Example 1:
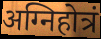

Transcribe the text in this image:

अग्निहोत्रं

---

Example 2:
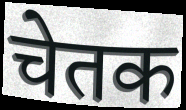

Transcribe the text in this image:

चेतक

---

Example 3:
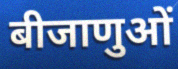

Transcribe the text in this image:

बीजाणुओं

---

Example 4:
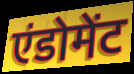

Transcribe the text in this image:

एंडोमेंट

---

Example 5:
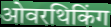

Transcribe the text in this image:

ओवरथिकिंग